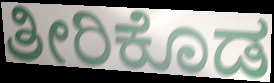
ತೀರಿಕೊಡ